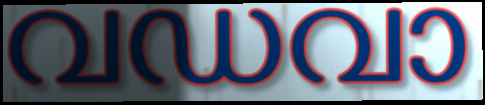
വഡവാ